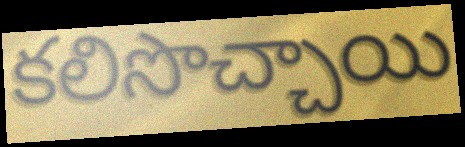
కలిసొచ్చాయి